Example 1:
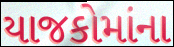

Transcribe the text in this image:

યાજકોમાંના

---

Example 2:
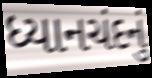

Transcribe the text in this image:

ધ્યાનચંદનું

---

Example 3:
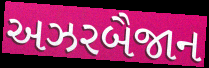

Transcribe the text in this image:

અઝરબૈજાન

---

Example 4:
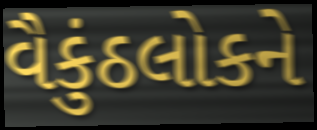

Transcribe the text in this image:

વૈકુંઠલોકને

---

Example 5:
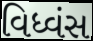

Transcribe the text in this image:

વિધ્વંસ